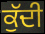
ਕੁੱਦੀ